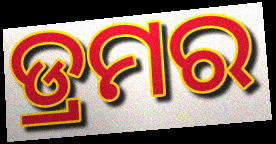
ଡ୍ରମର